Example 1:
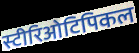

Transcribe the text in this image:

स्टीरिओटिपिकल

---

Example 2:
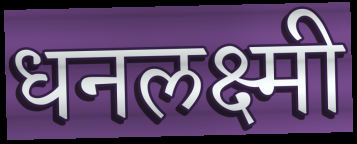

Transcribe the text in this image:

धनलक्ष्मी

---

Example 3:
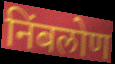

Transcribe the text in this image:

निंबलोण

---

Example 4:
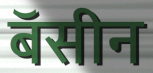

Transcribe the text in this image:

बॅसीन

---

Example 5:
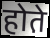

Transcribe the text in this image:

होत़े